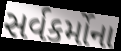
સર્વકર્મોના